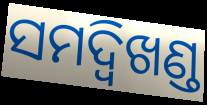
ସମଦ୍ବିଖଣ୍ଡ